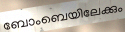
ബോംബെയിലേക്കും